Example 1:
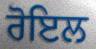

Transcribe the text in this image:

ਰੋਇਲ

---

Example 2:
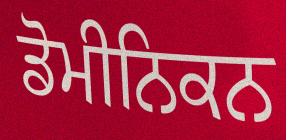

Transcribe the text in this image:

ਡੋਮੀਨਿਕਨ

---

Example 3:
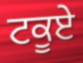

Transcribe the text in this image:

ਟਕੂਏ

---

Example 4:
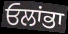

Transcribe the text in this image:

ਓਲਾਂਭਾ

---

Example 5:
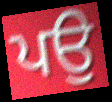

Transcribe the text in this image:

ਪਉ